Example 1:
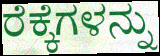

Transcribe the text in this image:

ರೆಕ್ಕೆಗಳನ್ನು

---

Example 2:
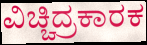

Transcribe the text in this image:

ವಿಚ್ಚಿದ್ರಕಾರಕ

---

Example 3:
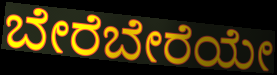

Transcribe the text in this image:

ಬೇರೆಬೇರೆಯೇ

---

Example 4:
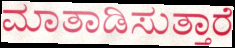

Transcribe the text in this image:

ಮಾತಾಡಿಸುತ್ತಾರೆ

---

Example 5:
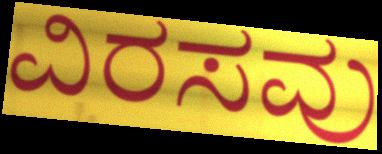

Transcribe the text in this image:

ವಿರಸವು